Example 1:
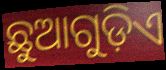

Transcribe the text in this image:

ଛୁଆଗୁଡ଼ିଏ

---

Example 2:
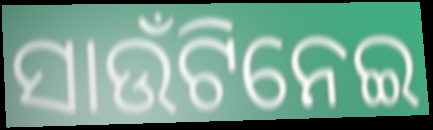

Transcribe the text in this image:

ସାଉଁଟିନେଇ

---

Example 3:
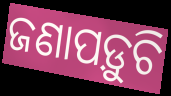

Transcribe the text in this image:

ଜଣାପଡ଼ୁଚି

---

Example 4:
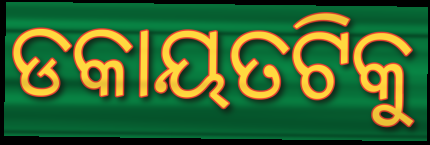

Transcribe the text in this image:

ଡକାୟତଟିକୁ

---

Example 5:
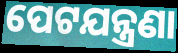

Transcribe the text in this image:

ପେଟଯନ୍ତ୍ରଣା